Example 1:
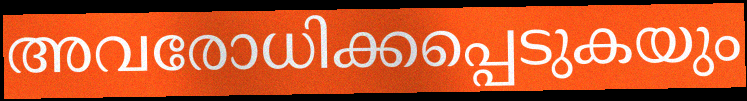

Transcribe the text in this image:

അവരോധിക്കപ്പെടുകയും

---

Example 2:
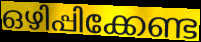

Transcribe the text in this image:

ഒഴിപ്പിക്കേണ്ട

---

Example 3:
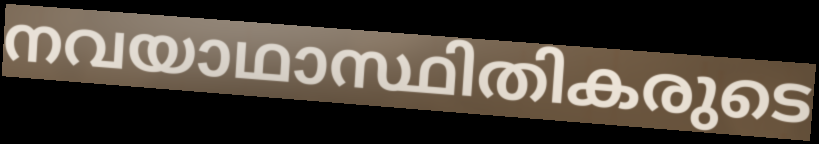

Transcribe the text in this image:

നവയാഥാസ്ഥിതികരുടെ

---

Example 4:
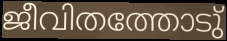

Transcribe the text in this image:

ജീവിതത്തോടു്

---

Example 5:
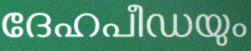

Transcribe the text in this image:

ദേഹപീഡയും